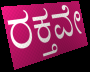
ರಕ್ತವೇ